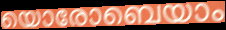
യൊരോബെയാം